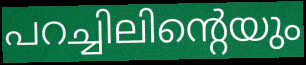
പറച്ചിലിന്റെയും